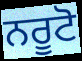
ਨਰੂਟੋ